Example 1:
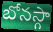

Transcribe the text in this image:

బోనస్గా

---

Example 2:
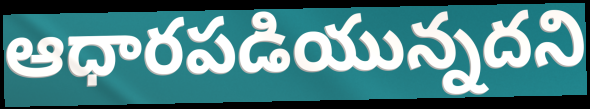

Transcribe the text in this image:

ఆధారపడియున్నదని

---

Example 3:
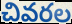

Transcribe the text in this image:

చివరల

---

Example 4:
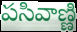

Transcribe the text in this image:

పసివాణ్ణి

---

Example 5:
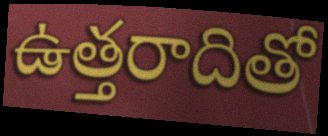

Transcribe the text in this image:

ఉత్తరాదితో